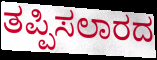
ತಪ್ಪಿಸಲಾರದ